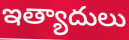
ఇత్యాదులు